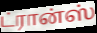
ட்ரான்ஸ்